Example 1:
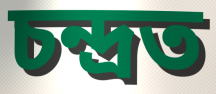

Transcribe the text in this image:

চন্দ্ৰত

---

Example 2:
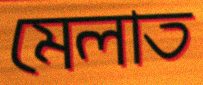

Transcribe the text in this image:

মেলাত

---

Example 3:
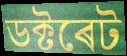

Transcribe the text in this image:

ডক্টৰেট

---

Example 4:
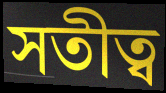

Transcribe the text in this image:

সতীত্ব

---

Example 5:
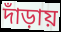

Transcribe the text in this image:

দাঁড়ায়